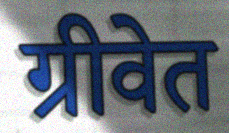
ग्रीवेत